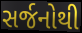
સર્જનોથી